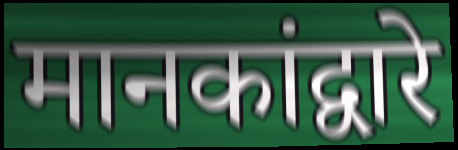
मानकांद्वारे